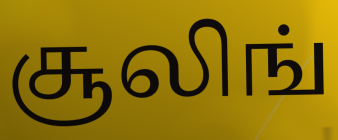
சூலிங்